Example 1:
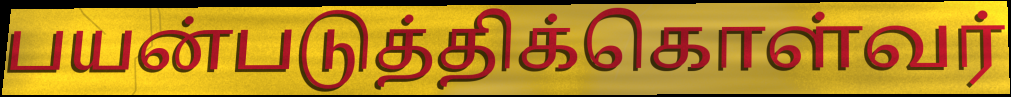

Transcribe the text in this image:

பயன்படுத்திக்கொள்வர்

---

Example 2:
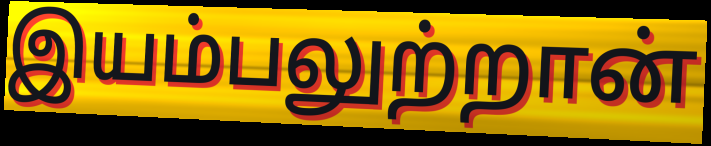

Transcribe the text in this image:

இயம்பலுற்றான்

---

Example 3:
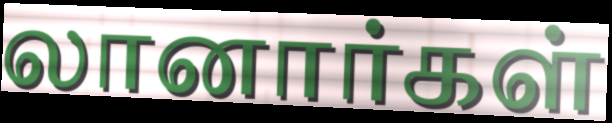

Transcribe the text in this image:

லானார்கள்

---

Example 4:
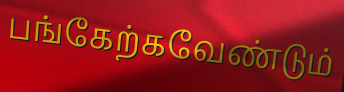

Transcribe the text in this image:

பங்கேற்கவேண்டும்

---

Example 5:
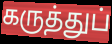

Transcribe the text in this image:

கருத்துப்